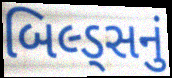
બિલ્ડ્સનું